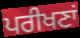
ਪਰੀਖਣਾਂ